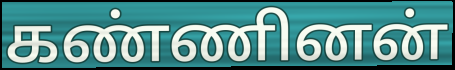
கண்ணினன்